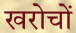
खरोचों